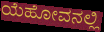
ಯೆಹೋವನಲ್ಲಿ